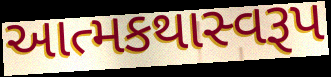
આત્મકથાસ્વરૂપ